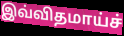
இவ்விதமாய்ச்